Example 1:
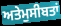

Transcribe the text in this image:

ਅਤੇਮੁਸੀਬਤਾਂ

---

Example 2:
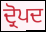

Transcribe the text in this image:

ਦ੍ਰੋਪਦ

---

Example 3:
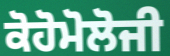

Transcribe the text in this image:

ਕੋਹੋਮੋਲੋਜੀ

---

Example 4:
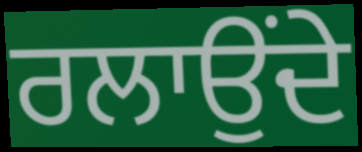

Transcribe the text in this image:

ਰਲਾਉਂਦੇ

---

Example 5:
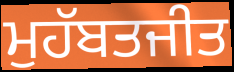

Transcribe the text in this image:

ਮੁਹੱਬਤਜੀਤ